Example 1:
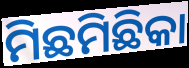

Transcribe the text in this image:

ମିଛମିଛିକା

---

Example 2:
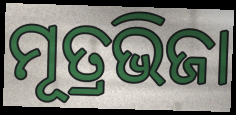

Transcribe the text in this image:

ମୂତ୍ରଭିଜା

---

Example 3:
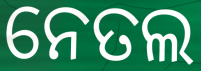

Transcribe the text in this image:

ନେତଲ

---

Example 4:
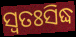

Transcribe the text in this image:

ସ୍ବତଃସିଦ୍ଧ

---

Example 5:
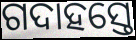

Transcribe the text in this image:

ଗଦାହସ୍ତେ